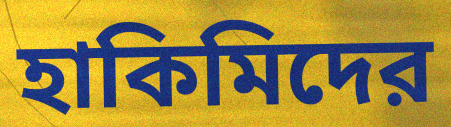
হাকিমিদের